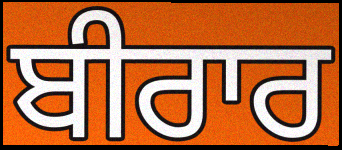
ਬੀਰਾਰ